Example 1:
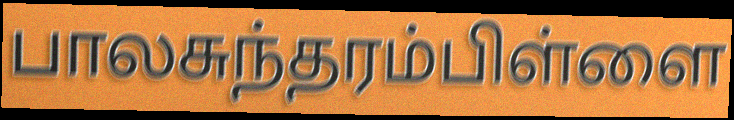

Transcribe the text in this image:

பாலசுந்தரம்பிள்ளை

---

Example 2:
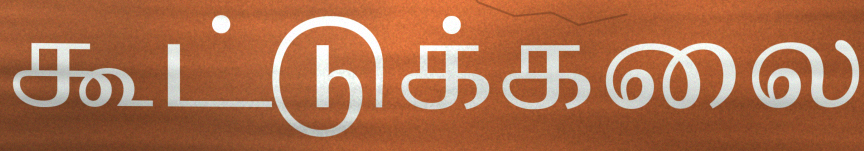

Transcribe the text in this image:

கூட்டுக்கலை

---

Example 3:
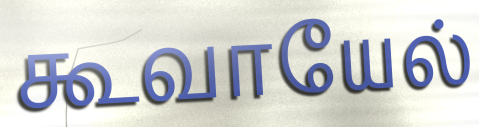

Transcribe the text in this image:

கூவாயேல்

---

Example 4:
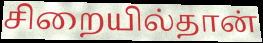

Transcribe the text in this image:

சிறையில்தான்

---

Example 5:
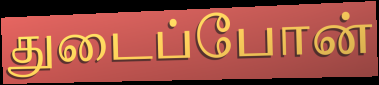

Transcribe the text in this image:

துடைப்போன்